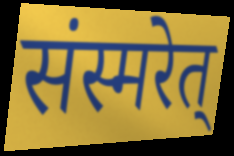
संस्मरेत्